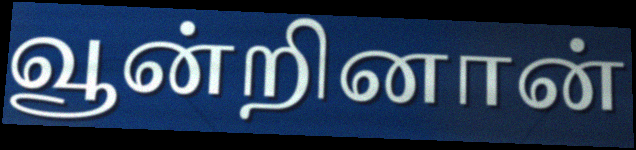
வூன்றினான்